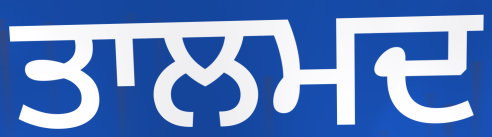
ਤਾਲਮਦ